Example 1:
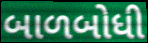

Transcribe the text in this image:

બાળબોધી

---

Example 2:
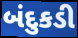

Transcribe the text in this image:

બંદુકડી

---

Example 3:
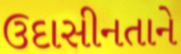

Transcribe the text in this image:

ઉદાસીનતાને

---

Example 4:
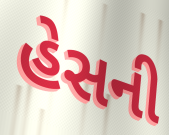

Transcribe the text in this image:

હેસની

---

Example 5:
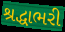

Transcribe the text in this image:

શ્રદ્ધાભરી